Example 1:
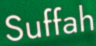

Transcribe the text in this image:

Suffah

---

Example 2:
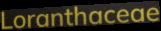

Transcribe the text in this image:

Loranthaceae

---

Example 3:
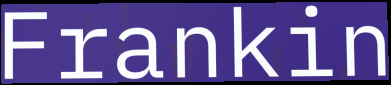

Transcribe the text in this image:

Frankin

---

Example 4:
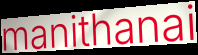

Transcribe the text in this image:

manithanai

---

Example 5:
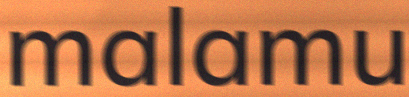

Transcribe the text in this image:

malamu